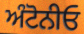
ਅੰਟੋਨੀਓ